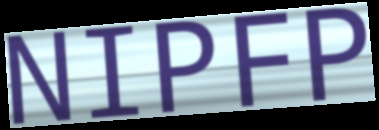
NIPFP